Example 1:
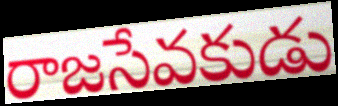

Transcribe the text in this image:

రాజసేవకుడు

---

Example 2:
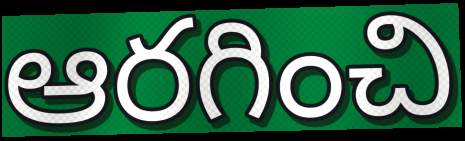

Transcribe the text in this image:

ఆరగించి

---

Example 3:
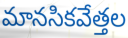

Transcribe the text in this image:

మానసికవేత్తల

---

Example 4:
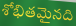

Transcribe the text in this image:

శోభితమైనది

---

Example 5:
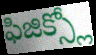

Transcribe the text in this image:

ఫిజిక్స్లో